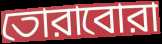
তোরাবোরা